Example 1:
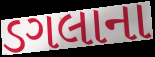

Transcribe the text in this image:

ડગલાના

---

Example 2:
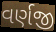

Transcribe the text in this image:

વર્ણજી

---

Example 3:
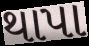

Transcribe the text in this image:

થાપા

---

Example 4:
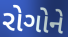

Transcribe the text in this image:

રોગોને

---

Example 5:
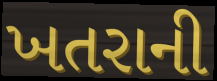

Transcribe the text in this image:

ખતરાની